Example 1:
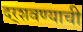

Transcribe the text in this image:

दर्शवण्याची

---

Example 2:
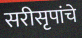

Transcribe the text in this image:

सरीसृपांचे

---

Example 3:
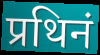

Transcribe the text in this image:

प्रथिनं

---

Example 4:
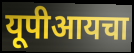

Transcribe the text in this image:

यूपीआयचा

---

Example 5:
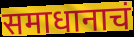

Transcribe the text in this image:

समाधानाचं